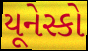
યૂનેસ્કો